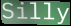
Silly